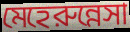
মেহেরুন্নেসা